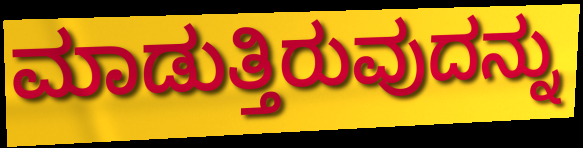
ಮಾಡುತ್ತಿರುವುದನ್ನು